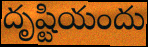
దృష్టియందు